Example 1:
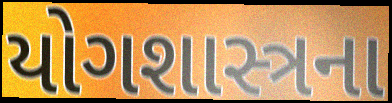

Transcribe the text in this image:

યોગશાસ્ત્રના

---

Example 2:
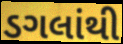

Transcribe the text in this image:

ડગલાંથી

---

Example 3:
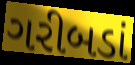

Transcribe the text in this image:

ગરીબડાં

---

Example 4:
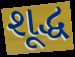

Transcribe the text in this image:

શૂદ્ધ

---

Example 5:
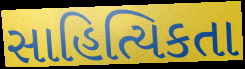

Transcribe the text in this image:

સાહિત્યિકતા